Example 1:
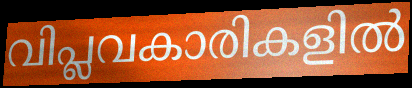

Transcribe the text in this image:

വിപ്ലവകാരികളിൽ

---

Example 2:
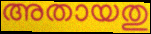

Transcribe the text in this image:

അതായതു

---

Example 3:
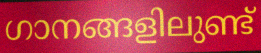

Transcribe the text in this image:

ഗാനങ്ങളിലുണ്ട്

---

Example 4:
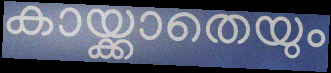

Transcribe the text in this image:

കായ്ക്കാതെയും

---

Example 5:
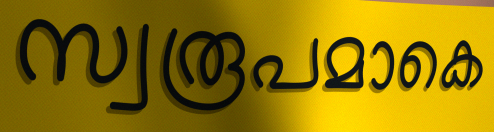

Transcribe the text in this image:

സ്വരൂപമാകെ